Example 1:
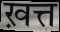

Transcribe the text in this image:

ख़त्त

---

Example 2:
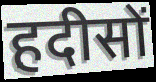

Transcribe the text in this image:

ह़दीसों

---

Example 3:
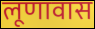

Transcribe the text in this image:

लूणावास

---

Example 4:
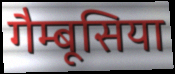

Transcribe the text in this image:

गैम्बूसिया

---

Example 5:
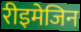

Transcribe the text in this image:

रीइमेजिन